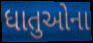
ધાતુઓના